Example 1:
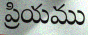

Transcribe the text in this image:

ప్రియము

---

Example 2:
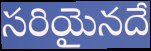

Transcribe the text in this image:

సరియైనదే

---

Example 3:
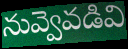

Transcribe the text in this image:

నువ్వెవడివి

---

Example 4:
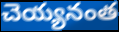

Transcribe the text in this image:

చెయ్యనంత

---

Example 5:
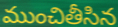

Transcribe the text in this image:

ముంచితీసిన